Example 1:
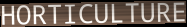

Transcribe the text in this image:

HORTICULTURE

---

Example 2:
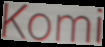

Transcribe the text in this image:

Komi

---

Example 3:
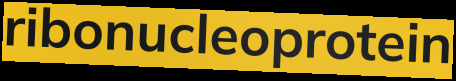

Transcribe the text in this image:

ribonucleoprotein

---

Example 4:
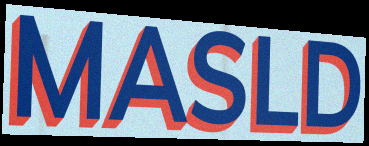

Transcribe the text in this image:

MASLD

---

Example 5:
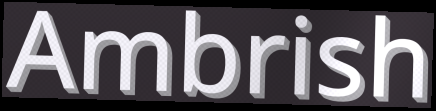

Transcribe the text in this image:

Ambrish